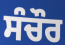
ਸੰਚੌਰ